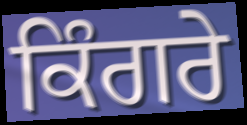
ਕਿੰਗਰੇ